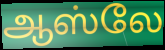
ஆஸ்லே